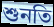
শুনতি